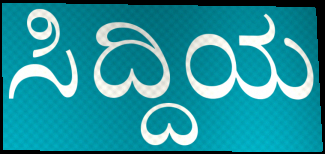
ಸಿದ್ದಿಯ